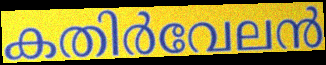
കതിർവേലൻ